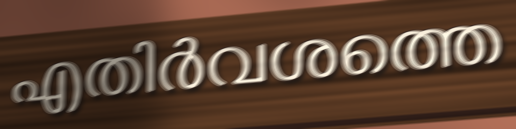
എതിർവശത്തെ